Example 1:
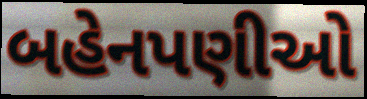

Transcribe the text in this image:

બહેનપણીઓ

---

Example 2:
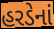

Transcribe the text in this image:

હરડેનાં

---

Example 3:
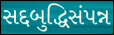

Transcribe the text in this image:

સદ્દબુદ્ધિસંપન્ન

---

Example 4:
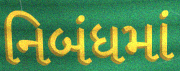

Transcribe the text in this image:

નિબંધમાં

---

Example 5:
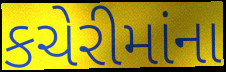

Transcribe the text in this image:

કચેરીમાંના